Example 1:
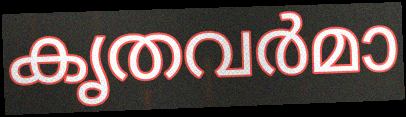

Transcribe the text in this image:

കൃതവർമാ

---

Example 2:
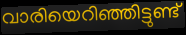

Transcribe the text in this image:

വാരിയെറിഞ്ഞിട്ടുണ്ട്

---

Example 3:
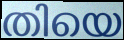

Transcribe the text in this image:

തിയെ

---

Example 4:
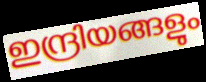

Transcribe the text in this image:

ഇന്ദ്രിയങ്ങളും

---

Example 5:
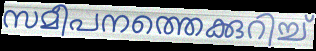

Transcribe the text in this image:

സമീപനത്തെക്കുറിച്ച്